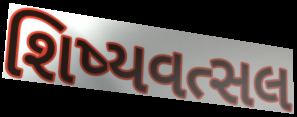
શિષ્યવત્સલ